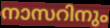
നാസറിനും